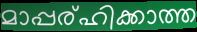
മാപ്പര്ഹിക്കാത്ത